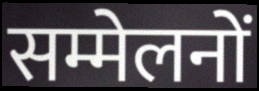
सम्‍मेलनों